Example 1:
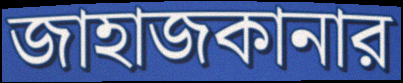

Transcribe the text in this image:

জাহাজকানার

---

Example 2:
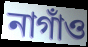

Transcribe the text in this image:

নাগাঁও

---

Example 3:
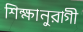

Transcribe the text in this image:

শিক্ষানুরাগী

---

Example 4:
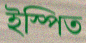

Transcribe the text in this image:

ইস্পিত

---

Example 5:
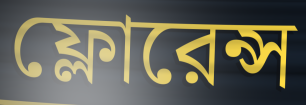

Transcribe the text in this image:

ফ্লোরেন্স